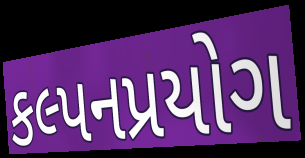
કલ્પનપ્રયોગ